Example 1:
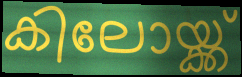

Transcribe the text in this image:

കിലോയ്ക്ക്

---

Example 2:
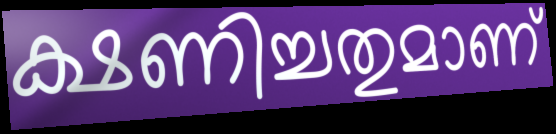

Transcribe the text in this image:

ക്ഷണിച്ചതുമാണ്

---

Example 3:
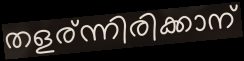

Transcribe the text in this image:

തളര്ന്നിരിക്കാന്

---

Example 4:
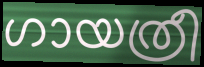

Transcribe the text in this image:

ഗായത്രീ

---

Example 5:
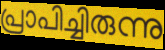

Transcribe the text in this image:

പ്രാപിച്ചിരുന്നു